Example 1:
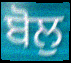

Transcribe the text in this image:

ਬੋਲੁ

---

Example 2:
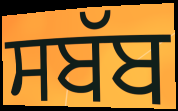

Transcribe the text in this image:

ਸਬੱਬ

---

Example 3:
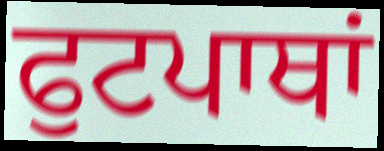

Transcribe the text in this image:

ਫੁਟਪਾਥਾਂ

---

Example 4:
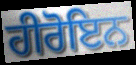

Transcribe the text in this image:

ਹੀਰੋਇਨ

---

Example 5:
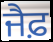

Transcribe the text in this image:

ਜੈਫ਼